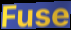
Fuse